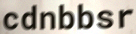
cdnbbsr